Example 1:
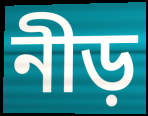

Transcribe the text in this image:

নীড়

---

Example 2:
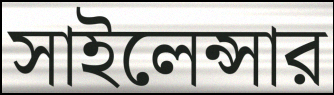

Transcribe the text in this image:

সাইলেন্সার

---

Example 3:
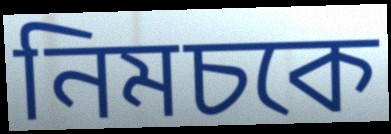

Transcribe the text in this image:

নিমচকে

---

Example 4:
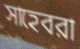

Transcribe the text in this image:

সাহেবরা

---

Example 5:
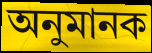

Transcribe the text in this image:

অনুমানক